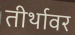
तीर्थावर